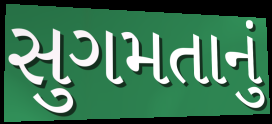
સુગમતાનું